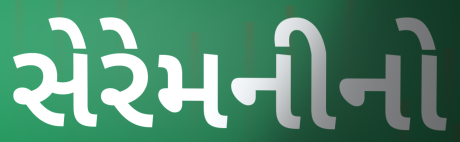
સેરેમનીનો